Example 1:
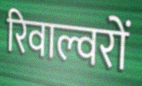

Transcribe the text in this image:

रिवाल्वरों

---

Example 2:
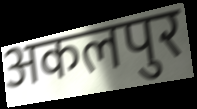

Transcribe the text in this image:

अकलपुर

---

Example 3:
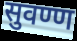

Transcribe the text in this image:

सुवण्ण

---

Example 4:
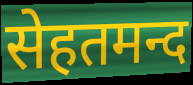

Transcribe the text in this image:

सेहतमन्द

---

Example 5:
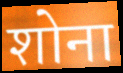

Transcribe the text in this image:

शोना